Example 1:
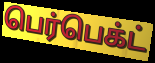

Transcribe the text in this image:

பெர்பெக்ட்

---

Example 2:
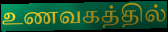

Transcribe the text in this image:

உணவகத்தில்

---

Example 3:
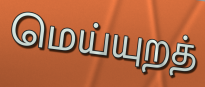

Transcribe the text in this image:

மெய்யுறத்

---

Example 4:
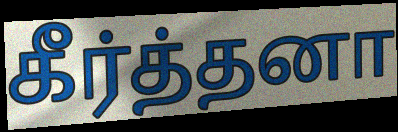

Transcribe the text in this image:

கீர்த்தனா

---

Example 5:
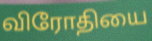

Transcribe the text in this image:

விரோதியை